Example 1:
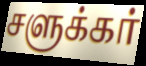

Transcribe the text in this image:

சளுக்கர்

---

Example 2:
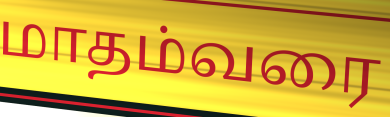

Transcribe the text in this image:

மாதம்வரை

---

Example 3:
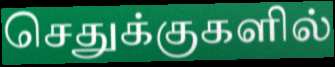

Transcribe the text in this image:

செதுக்குகளில்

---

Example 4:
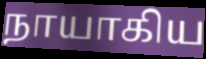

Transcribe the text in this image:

நாயாகிய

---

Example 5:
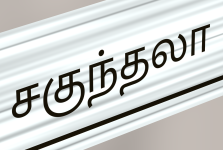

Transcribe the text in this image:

சகுந்தலா